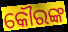
କୌରଙ୍କ